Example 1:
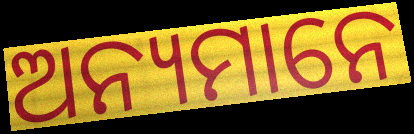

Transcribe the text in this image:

ଅନ୍ଯମାନେ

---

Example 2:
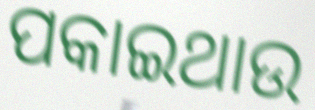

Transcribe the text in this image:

ପକାଇଥାଉ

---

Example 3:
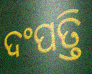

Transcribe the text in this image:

ଦଂପତ୍ତି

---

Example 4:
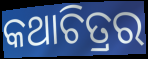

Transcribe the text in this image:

କଥାଚିତ୍ରର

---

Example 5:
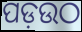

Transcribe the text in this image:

ପଡ଼ଉଠ